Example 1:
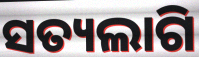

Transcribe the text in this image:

ସତ୍ୟଲାଗି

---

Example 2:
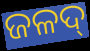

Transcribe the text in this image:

ଜଳଦ୍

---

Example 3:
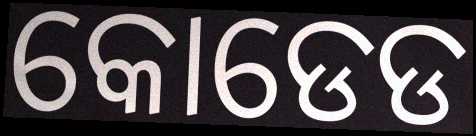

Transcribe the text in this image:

କୋଡେଡ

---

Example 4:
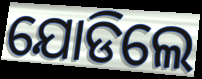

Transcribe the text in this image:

ଯୋଡିଲେ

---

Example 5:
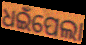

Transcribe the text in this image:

ଧଇଁପେଲା